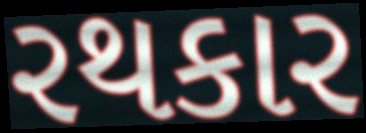
રથકાર